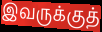
இவருக்குத்